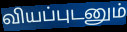
வியப்புடனும்